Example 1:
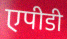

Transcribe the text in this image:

एपीडी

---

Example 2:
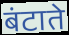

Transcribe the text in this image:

बंटाते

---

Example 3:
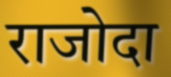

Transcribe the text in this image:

राजोदा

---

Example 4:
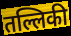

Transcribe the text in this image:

तल्लिकी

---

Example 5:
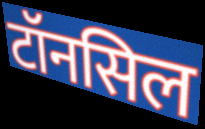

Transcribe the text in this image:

टॉनसिल